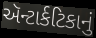
ઍન્ટાર્કટિકાનું